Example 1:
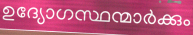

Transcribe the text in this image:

ഉദ്യോഗസ്ഥന്മാർക്കും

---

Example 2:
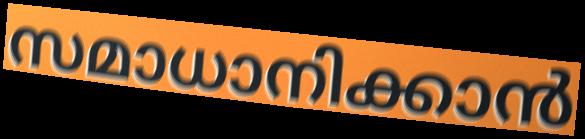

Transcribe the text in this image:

സമാധാനിക്കാൻ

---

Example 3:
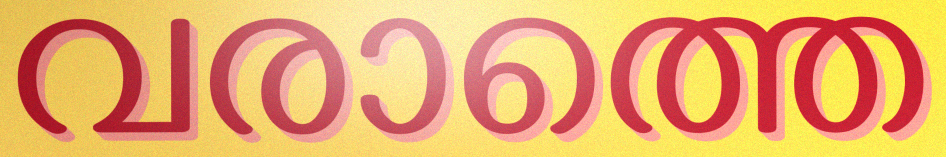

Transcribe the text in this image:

വരാത്തെ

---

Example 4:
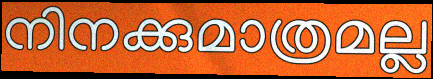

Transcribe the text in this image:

നിനക്കുമാത്രമല്ല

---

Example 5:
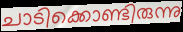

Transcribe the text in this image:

ചാടിക്കൊണ്ടിരുന്നു